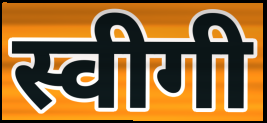
स्वीगी